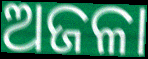
ଅଜଳା